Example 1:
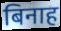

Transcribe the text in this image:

बिनाह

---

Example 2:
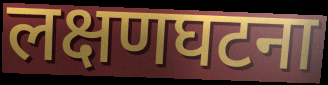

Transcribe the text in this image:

लक्षणघटना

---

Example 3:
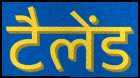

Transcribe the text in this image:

टैलेंड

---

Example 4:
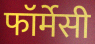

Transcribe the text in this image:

फॉर्मेसी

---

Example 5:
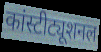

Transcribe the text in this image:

कांस्टीट्यूशनल